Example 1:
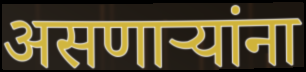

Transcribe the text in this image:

असणाऱ्यांना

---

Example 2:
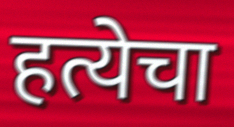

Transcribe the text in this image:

हत्येचा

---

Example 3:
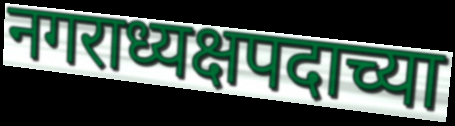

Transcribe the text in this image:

नगराध्यक्षपदाच्या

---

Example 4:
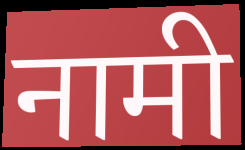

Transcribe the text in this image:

नामी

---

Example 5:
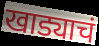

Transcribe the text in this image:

खाड्याचं